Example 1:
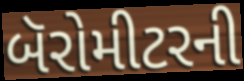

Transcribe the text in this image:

બૅરોમીટરની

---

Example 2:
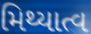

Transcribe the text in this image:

મિથ્યાત્વ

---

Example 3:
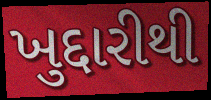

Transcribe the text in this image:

ખુદ્દારીથી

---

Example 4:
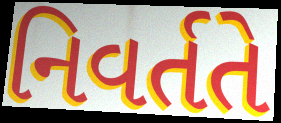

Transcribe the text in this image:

નિવર્તતે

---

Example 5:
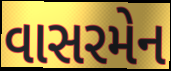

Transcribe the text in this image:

વાસરમેન